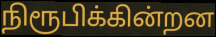
நிரூபிக்கின்றன